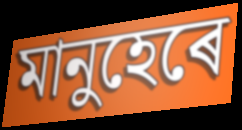
মানুহেৰে